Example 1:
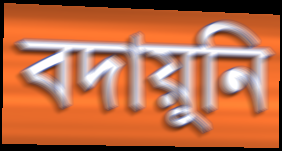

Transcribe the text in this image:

বদায়ুনি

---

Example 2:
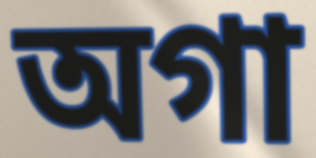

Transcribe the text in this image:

অগা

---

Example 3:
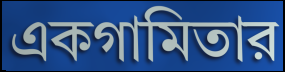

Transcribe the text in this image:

একগামিতার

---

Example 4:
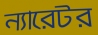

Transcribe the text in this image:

ন্যারেটর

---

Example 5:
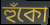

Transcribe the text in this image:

হুঁকো